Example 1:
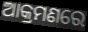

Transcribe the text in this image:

ଆକ୍ରମଣରେ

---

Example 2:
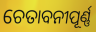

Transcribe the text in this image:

ଚେତାବନୀପୂର୍ଣ୍ଣ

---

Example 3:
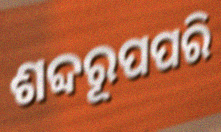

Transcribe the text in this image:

ଶବ୍ଦରୂପପରି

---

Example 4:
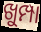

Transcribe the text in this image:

ଖୁମ୍ପା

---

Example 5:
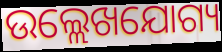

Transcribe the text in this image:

ଉଲ୍ଲେଖଯୋଗ୍ୟ